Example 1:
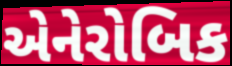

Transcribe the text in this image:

એનેરોબિક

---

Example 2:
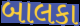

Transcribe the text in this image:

બાલકા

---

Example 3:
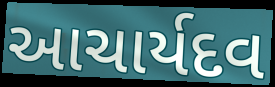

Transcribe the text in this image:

આચાર્યદવ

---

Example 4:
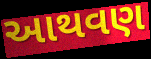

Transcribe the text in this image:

આથવણ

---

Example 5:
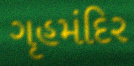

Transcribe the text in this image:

ગૃહમંદિર